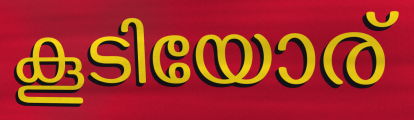
കൂടിയോര്